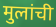
मुलांची